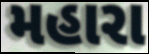
મહારા